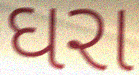
ઘરા